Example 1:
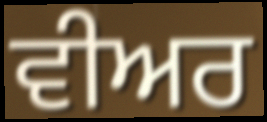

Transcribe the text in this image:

ਵੀਅਰ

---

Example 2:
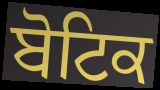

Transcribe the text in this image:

ਬੋਟਿਕ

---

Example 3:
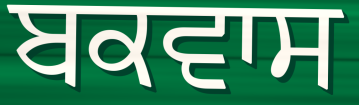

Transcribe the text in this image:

ਬਕਵਾਸ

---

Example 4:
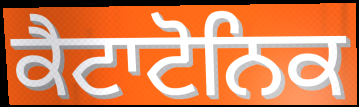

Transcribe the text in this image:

ਕੈਟਾਟੋਨਿਕ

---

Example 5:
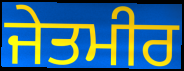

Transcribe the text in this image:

ਜੇਤਮੀਰ